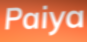
Paiya